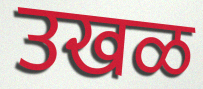
उखळ